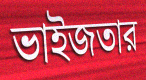
ভাইজতার